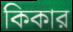
কিকার